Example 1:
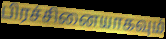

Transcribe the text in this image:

பிரச்சினையாகவும்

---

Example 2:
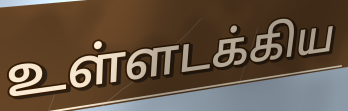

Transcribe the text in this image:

உள்ளடக்கிய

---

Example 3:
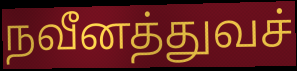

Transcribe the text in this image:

நவீனத்துவச்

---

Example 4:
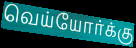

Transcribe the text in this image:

வெய்யோர்க்கு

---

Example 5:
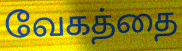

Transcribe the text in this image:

வேகத்தை